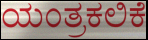
ಯಂತ್ರಕಲಿಕೆ